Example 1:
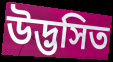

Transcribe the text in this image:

উদ্ভসিত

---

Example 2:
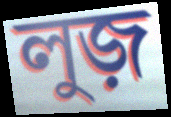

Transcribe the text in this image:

লুজ়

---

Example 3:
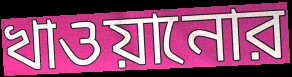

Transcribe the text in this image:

খাওয়ানোর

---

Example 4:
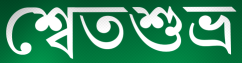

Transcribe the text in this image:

শ্বেতশুভ্র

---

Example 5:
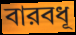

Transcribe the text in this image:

বারবধূ